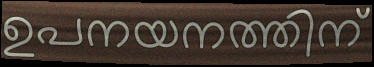
ഉപനയനത്തിന്